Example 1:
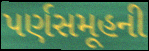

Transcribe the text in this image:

પર્ણસમૂહની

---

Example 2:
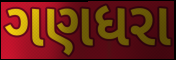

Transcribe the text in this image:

ગણધરા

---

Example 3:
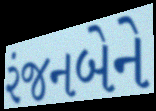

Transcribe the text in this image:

રંજનબેને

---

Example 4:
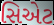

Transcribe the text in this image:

સિએટ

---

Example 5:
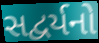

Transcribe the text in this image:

સદ્વર્યનો